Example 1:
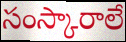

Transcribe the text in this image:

సంస్కారాలే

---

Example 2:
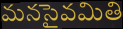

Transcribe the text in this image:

మనసైవమితి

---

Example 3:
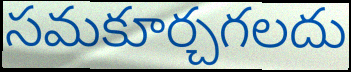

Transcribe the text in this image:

సమకూర్చగలదు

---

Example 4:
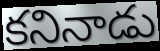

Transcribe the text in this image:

కనినాడు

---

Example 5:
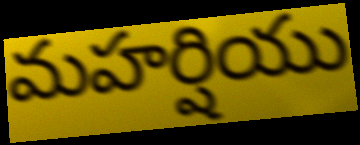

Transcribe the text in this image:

మహర్షియు